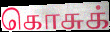
கொசுக்